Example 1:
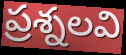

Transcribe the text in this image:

ప్రశ్నలవి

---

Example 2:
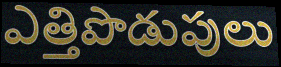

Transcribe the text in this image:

ఎత్తిపొడుపులు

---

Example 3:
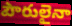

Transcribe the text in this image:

పౌరులైనా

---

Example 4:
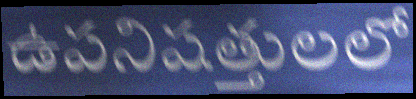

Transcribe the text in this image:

ఉపనిషత్తులలో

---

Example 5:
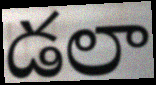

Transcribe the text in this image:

డలా